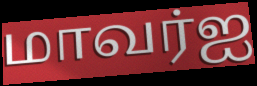
மாவர்ஐ